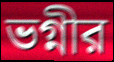
ভগ্নীর